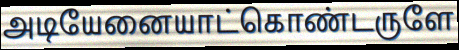
அடியேனையாட்கொண்டருளே